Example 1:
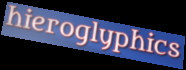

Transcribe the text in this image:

hieroglyphics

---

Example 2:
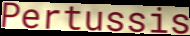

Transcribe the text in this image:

Pertussis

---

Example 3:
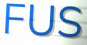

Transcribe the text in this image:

FUS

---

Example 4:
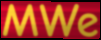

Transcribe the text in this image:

MWe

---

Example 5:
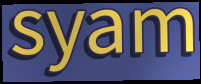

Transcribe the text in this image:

syam